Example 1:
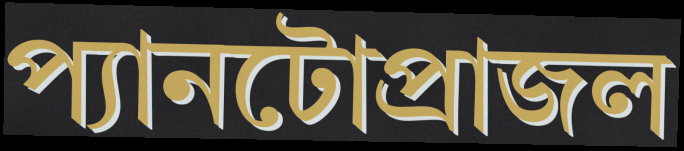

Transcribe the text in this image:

প্যানটোপ্রাজল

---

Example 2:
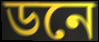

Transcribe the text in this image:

ডনে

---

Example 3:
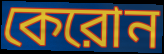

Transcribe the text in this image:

কেরোন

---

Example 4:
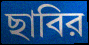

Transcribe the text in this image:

ছাবির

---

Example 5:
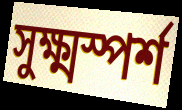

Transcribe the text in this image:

সুক্ষ্মস্পর্শ